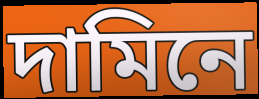
দামিনে